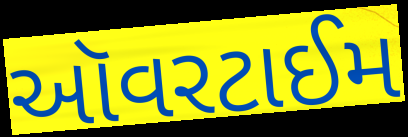
ઑવરટાઈમ